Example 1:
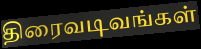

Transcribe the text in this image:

திரைவடிவங்கள்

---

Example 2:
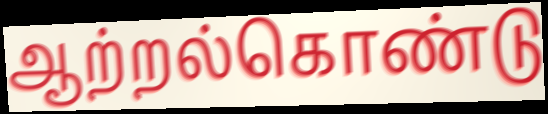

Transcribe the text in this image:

ஆற்றல்கொண்டு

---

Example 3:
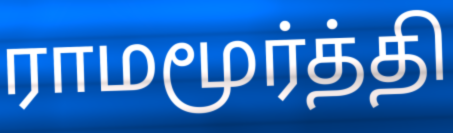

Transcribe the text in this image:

ராமமூர்த்தி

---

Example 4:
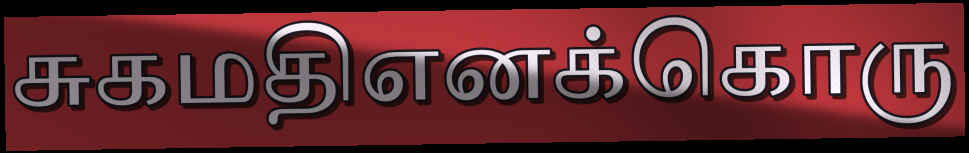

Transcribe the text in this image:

சுகமதிஎனக்கொரு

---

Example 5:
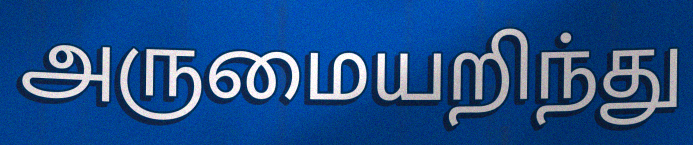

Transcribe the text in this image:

அருமையறிந்து